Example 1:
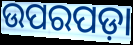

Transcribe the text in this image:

ଉପରପଡ଼ା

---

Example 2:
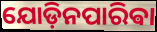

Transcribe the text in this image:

ଯୋଡ଼ିନପାରିଵା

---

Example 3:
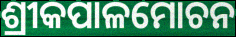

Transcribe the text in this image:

ଶ୍ରୀକପାଳମୋଚନ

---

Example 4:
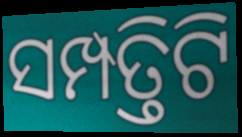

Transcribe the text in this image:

ସମ୍ପତ୍ତିଟି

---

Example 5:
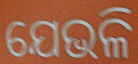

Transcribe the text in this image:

ଯେଭଳି